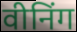
वीनिंग